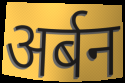
अर्बन